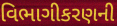
વિભાગીકરણની